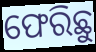
ଫେରିଛୁ